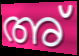
അ്